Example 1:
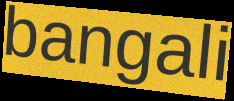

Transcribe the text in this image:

bangali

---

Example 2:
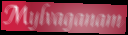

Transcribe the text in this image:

Mylvaganam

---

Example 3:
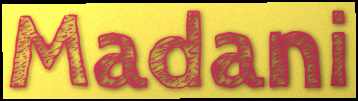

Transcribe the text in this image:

Madani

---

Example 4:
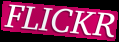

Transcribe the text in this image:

FLICKR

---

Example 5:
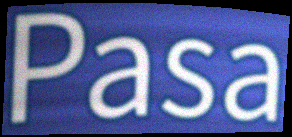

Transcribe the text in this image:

Pasa